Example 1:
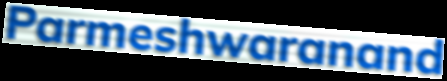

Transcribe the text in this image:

Parmeshwaranand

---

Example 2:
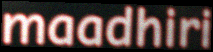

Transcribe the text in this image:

maadhiri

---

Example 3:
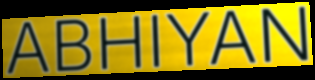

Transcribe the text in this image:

ABHIYAN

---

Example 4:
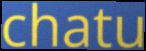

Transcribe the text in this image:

chatu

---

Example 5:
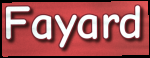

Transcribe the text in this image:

Fayard